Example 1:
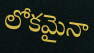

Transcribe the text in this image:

లోకమైనా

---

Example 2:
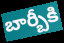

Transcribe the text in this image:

బార్బీకి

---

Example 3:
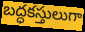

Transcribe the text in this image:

బద్ధకస్తులుగా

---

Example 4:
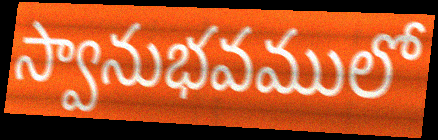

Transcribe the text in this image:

స్వానుభవములో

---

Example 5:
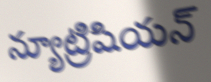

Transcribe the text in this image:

న్యూట్రిషియన్